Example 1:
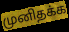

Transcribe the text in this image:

முனிதக்க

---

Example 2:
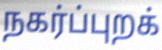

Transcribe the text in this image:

நகர்ப்புறக்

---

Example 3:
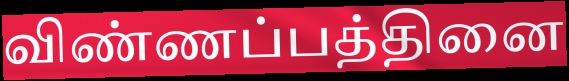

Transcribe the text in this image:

விண்ணப்பத்தினை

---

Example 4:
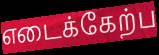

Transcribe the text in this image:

எடைக்கேற்ப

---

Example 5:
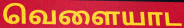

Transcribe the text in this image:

வெளையாட